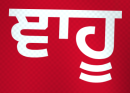
ਞਾਹੂ